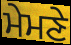
ਮੇਮਣੇ